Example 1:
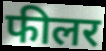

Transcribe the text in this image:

फीलर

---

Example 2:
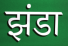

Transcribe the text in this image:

झंडा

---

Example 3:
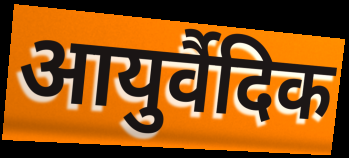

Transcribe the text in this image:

आयुर्वैदिक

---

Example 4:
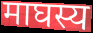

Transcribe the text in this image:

माघस्य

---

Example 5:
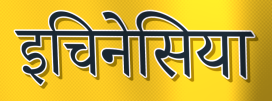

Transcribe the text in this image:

इचिनेसिया